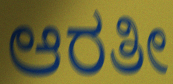
ಆರತೀ